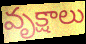
వృక్షాలు